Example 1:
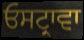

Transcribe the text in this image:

ਓਸਟ੍ਰਾਵਾ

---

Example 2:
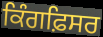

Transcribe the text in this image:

ਕਿੰਗਫ਼ਿਸਰ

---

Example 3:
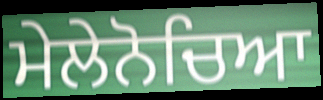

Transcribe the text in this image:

ਮੇਲੇਨੋਚਿਆ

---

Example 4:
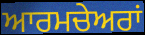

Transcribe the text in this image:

ਆਰਮਚੇਅਰਾਂ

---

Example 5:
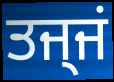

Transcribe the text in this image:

ਤਜ੍ਜਂ